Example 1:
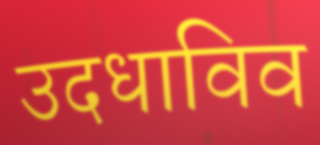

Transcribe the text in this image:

उदधाविव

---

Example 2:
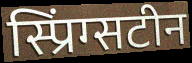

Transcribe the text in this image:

स्प्रिंग्सटीन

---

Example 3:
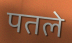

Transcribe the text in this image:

पतले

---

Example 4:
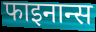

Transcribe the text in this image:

फाइनान्स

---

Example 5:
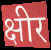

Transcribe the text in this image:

क्षीर